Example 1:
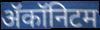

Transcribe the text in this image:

ॲकॉनिटम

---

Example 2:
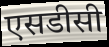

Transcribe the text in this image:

एसडीसी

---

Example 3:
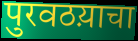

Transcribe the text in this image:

पुरवठय़ाचा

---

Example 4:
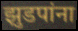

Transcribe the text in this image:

झुडपांना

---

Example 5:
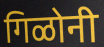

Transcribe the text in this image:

गिळोनी